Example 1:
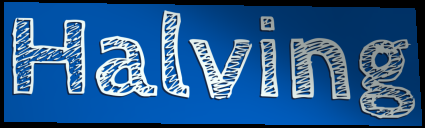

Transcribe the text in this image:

Halving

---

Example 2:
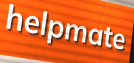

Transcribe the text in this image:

helpmate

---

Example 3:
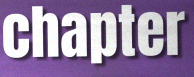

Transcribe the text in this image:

chapter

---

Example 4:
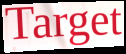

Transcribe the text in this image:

Target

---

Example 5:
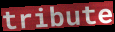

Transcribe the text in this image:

tribute